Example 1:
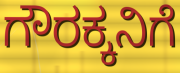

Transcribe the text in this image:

ಗೌರಕ್ಕನಿಗೆ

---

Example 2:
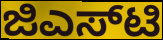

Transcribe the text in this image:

ಜಿಎಸ್‌ಟಿ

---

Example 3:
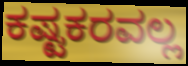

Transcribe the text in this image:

ಕಷ್ಟಕರವಲ್ಲ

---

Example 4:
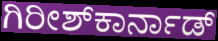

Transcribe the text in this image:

ಗಿರೀಶ್‌ಕಾರ್ನಾಡ್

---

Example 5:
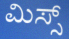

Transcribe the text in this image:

ಮಿಸ್ಸ್